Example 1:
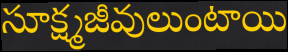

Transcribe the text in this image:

సూక్ష్మజీవులుంటాయి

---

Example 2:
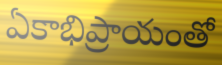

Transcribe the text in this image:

ఏకాభిప్రాయంతో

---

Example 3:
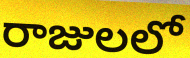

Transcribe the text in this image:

రాజులలో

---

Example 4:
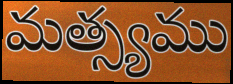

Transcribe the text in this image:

మత్స్యము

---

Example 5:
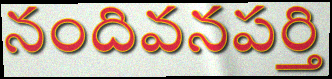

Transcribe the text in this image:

నందివనపర్తి